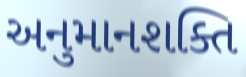
અનુમાનશક્તિ